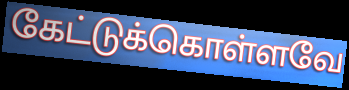
கேட்டுக்கொள்ளவே